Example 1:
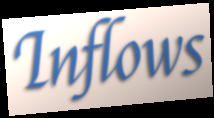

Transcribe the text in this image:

Inflows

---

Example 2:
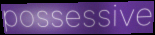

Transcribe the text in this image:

possessive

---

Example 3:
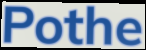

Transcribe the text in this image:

Pothe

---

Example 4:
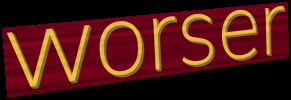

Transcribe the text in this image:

worser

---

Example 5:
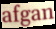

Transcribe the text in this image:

afgan